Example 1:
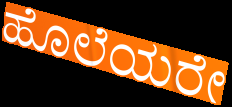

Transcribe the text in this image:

ಹೊಲೆಯರೇ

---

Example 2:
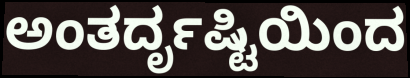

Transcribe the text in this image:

ಅಂತರ್ದೃಷ್ಟಿಯಿಂದ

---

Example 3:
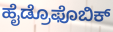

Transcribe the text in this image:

ಹೈಡ್ರೊಫೊಬಿಕ್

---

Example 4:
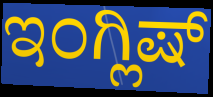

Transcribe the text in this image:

ಇಂಗ್ಲಿಷ್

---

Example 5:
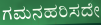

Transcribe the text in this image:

ಗಮನಹರಿಸದೇ